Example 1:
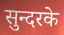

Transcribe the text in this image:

सुन्दरके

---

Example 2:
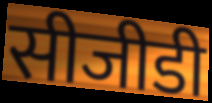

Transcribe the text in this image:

सीजीडी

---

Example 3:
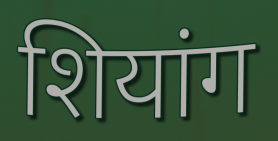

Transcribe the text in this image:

शियांग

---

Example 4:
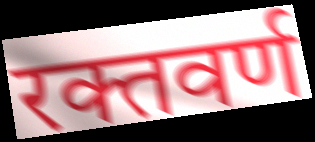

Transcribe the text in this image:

रक्तवर्ण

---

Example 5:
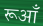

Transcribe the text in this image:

रूआँ